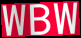
WBW